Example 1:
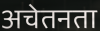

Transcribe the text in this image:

अचेतनता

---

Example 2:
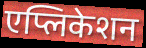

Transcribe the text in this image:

एप्लिकेशन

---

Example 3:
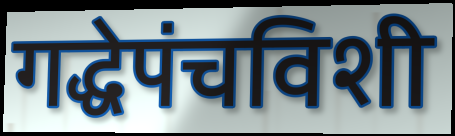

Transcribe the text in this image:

गद्धेपंचविशी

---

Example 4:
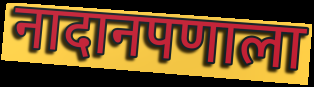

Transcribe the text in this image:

नादानपणाला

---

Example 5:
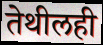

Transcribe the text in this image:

तेथीलही